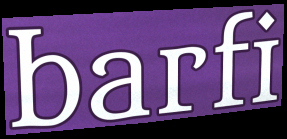
barfi